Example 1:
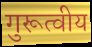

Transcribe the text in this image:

गुरूत्वीय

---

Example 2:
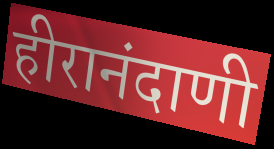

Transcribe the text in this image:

हीरानंदाणी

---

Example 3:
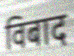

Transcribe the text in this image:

विबाद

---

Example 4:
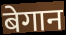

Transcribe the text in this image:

बेगान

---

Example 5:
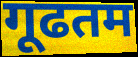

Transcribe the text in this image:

गूढतम